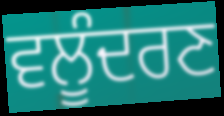
ਵਲੂੰਦਰਣ